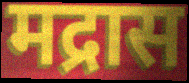
मद्रास